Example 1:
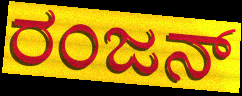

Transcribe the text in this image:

ರಂಜನ್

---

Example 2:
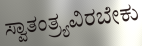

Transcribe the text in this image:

ಸ್ವಾತಂತ್ರ್ಯವಿರಬೇಕು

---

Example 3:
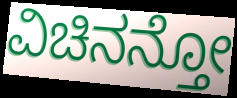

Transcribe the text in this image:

ವಿಚಿನನ್ತೋ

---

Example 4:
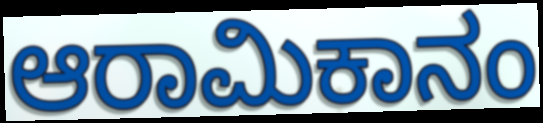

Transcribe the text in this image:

ಆರಾಮಿಕಾನಂ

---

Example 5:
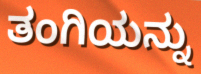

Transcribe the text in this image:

ತಂಗಿಯನ್ನು